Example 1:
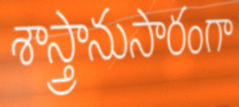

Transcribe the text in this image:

శాస్త్రానుసారంగా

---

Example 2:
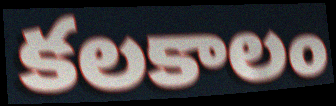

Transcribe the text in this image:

కలకాలం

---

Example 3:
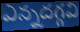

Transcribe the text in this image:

ఎన్నదగ్గవి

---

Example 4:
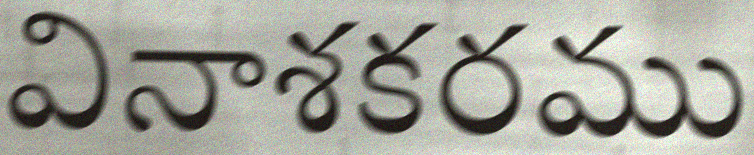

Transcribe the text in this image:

వినాశకరము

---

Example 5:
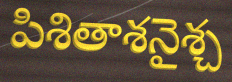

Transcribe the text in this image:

పిశితాశనైశ్చ